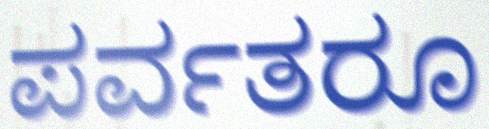
ಪರ್ವತರೂ